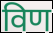
विण